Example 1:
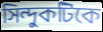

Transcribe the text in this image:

সিন্দুকটিকে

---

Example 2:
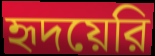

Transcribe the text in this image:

হৃদয়েরি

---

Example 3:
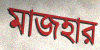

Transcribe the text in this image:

মাজহার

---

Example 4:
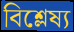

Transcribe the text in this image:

বিশ্লেষ্য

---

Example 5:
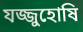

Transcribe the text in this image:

যজ্জুহোষি